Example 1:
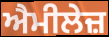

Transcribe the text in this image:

ਐਮੀਲੇਜ਼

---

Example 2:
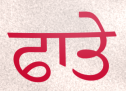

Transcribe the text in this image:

ਫਾਤੇ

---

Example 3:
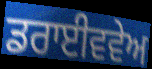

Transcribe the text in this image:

ਡਰਾਈਵਵੇਅ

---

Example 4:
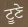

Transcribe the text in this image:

ਟੂਣੇ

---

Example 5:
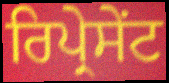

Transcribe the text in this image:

ਰਿਪ੍ਰੇਸੇੰਟ